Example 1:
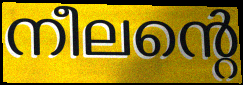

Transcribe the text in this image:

നീലന്റെ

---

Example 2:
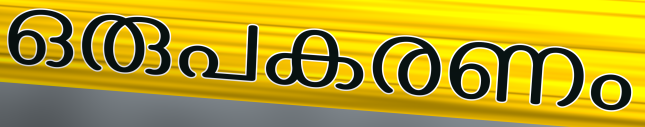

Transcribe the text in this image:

ഒരുപകരണം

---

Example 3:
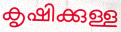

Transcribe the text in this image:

കൃഷിക്കുള്ള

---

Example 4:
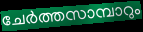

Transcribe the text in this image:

ചേർത്തസാമ്പാറും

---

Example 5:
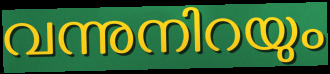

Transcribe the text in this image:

വന്നുനിറയും